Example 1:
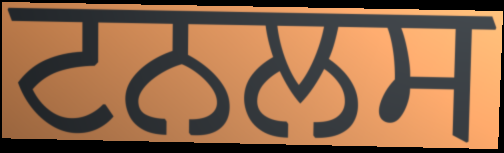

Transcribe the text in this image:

ਟਨਲਸ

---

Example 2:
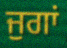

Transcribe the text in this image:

ਜੁਗਾਂ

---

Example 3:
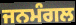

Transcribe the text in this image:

ਜਨਮੰਗਲ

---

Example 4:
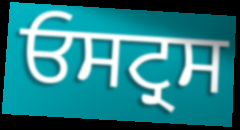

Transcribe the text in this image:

ਓਸਟ੍ਰਸ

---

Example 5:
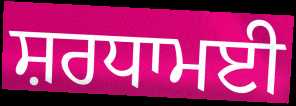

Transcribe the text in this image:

ਸ਼ਰਧਾਮਈ